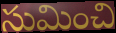
సుమించి